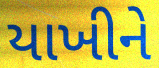
યાખીને